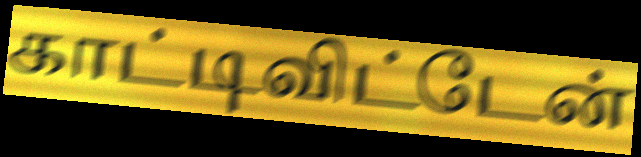
காட்டிவிட்டேன்